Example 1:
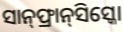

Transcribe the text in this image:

ସାନ୍‌ଫ୍ରାନ୍‌ସିସ୍କୋ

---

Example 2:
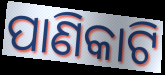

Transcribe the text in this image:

ପାଣିକାଟି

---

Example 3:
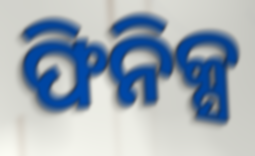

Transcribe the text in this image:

ଫିନିକ୍ସ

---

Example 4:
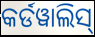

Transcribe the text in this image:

କର୍ଡୱାଲିସ୍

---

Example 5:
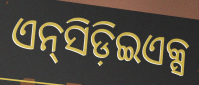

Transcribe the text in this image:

ଏନ୍‍ସିଡ଼ିଇଏକ୍ସ